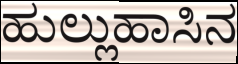
ಹುಲ್ಲುಹಾಸಿನ